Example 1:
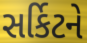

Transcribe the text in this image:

સર્કિટને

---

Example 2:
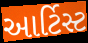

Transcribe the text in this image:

આર્ટિસ્ટ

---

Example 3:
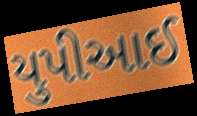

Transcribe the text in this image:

યુપીઆઈ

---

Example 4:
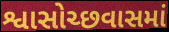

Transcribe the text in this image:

શ્વાસોચ્છવાસમાં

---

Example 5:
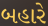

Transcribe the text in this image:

બહારે